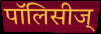
पॉलिसीज्